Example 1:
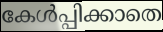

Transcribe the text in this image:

കേൾപ്പിക്കാതെ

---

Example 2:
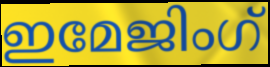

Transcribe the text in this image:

ഇമേജിംഗ്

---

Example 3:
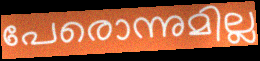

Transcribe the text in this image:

പേരൊന്നുമില്ല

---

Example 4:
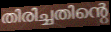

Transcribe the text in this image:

തിരിച്ചതിന്റെ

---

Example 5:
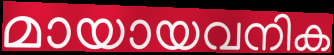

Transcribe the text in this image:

മായായവനിക